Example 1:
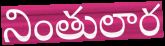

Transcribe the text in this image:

నింతులార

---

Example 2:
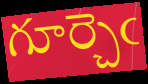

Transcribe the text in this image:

గూర్చెఁ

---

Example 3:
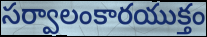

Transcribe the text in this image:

సర్వాలంకారయుక్తం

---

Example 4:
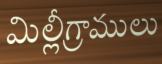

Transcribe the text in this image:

మిల్లీగ్రాములు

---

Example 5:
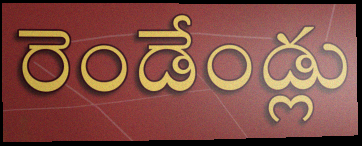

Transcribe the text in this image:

రెండేండ్లు